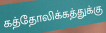
கத்தோலிக்கத்துக்கு